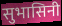
सुभासिनी